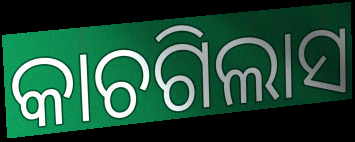
କାଚଗିଲାସ